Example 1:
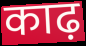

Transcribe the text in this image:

काढ़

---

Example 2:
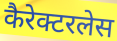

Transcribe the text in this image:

कैरेक्टरलेस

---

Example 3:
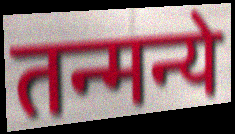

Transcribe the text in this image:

तन्मन्ये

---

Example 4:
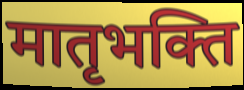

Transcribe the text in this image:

मातृभक्ति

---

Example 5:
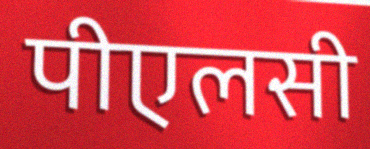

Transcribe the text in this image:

पीएलसी